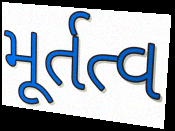
મૂર્તત્વ